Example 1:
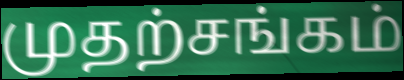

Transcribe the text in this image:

முதற்சங்கம்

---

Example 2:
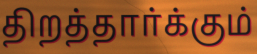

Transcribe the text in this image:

திறத்தார்க்கும்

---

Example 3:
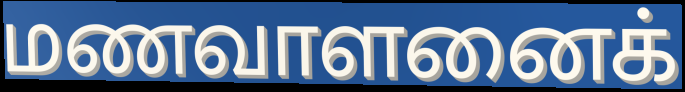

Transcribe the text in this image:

மணவாளனைக்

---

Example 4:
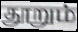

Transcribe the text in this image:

தூறும்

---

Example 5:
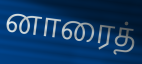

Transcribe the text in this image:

னாரைத்